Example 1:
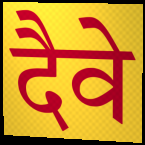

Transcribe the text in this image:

दैवे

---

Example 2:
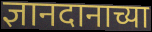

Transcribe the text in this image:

ज्ञानदानाच्या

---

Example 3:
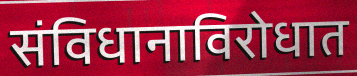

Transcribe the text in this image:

संविधानाविरोधात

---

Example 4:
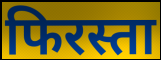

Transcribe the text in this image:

फिरस्ता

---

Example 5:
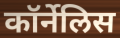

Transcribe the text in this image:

कॉर्नेलिस